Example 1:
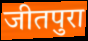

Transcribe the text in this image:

जीतपुरा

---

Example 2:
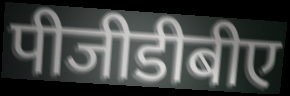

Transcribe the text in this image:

पीजीडीबीए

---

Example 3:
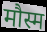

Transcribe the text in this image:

मौस्म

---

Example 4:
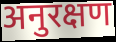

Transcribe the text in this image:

अनुरक्षण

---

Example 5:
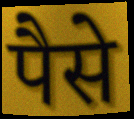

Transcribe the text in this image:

पैसे